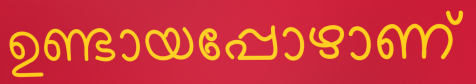
ഉണ്ടായപ്പോഴാണ്